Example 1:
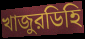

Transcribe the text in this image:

খাজুরডিহি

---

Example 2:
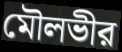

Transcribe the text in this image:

মৌলভীর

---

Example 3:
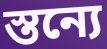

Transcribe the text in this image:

স্তন্যে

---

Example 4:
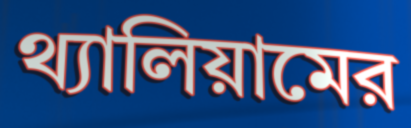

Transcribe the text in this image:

থ্যালিয়ামের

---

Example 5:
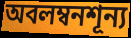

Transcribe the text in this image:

অবলম্বনশূন্য